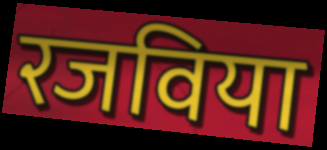
रजविया